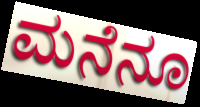
ಮನೆನೂ